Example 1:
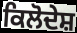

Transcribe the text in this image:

ਕਿਲੋਦੇਸ਼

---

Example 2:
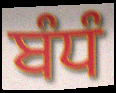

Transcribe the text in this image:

ਬੰਧੰ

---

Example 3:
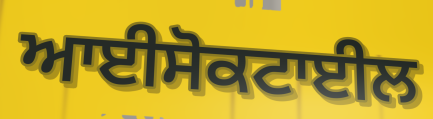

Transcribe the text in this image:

ਆਈਸੋਕਟਾਈਲ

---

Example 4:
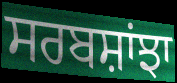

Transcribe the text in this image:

ਸਰਬਸ਼ਾਂਝਾ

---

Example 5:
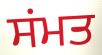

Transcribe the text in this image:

ਸਂਮਤ